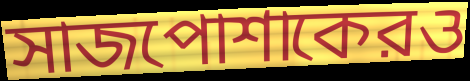
সাজপোশাকেরও